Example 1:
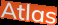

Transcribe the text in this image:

Atlas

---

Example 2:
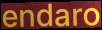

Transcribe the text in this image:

endaro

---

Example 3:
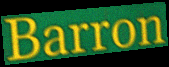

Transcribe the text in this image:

Barron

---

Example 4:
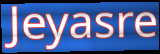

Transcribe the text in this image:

Jeyasre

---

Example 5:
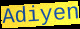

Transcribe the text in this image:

Adiyen